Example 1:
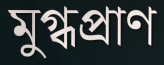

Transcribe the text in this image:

মুগ্ধপ্রাণ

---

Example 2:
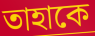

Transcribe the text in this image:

তাহাকে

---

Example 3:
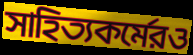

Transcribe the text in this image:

সাহিত্যকর্মেরও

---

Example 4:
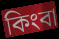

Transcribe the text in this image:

কিংবা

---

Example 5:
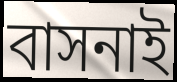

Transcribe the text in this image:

বাসনাই